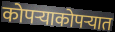
कोपऱ्याकोपऱ्यात